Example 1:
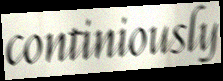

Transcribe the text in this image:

continiously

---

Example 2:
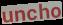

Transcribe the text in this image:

uncho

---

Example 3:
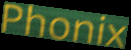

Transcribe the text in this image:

Phonix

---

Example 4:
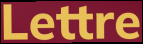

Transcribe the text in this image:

Lettre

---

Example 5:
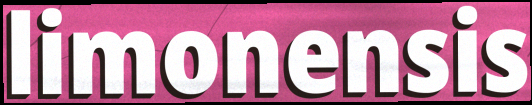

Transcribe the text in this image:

limonensis